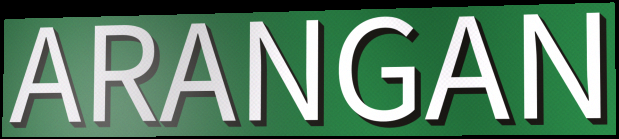
ARANGAN